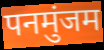
पनमुंजम